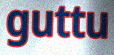
guttu